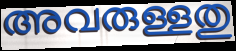
അവരുള്ളതു